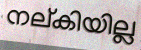
നല്കിയില്ല